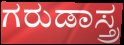
ಗರುಡಾಸ್ತ್ರ